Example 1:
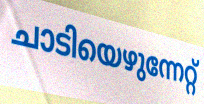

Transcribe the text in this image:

ചാടിയെഴുന്നേറ്റ്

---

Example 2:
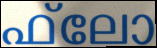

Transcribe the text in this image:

ഫ്‌ലോ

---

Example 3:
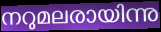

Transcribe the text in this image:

നറുമലരായിന്നു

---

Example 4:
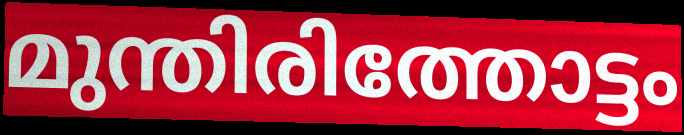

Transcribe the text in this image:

മുന്തിരിത്തോട്ടം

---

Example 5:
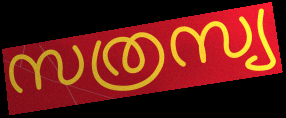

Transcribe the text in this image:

സത്രസ്യ